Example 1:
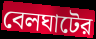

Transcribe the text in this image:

বেলঘাটের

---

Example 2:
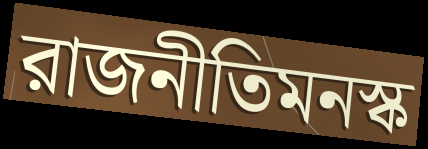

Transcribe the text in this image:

রাজনীতিমনস্ক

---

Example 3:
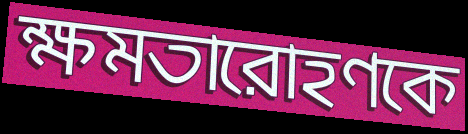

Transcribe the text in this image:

ক্ষমতারোহণকে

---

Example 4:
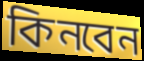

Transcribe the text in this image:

কিনবেন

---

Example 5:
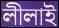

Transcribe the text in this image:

লীলাই